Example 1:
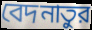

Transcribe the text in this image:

বেদনাতুর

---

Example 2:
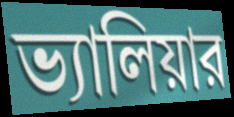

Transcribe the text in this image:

ভ্যালিয়ার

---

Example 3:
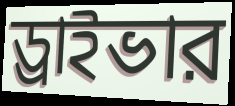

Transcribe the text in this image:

ড্রাইভার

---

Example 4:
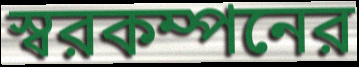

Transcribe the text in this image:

স্বরকম্পনের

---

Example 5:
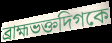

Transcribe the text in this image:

ব্রাহ্মভক্তদিগকে